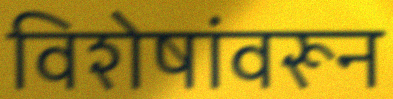
विशेषांवरून